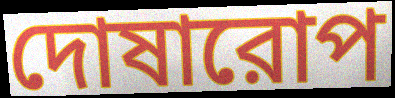
দোষারোপ